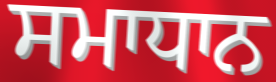
ਸਮਾਧਾਨ